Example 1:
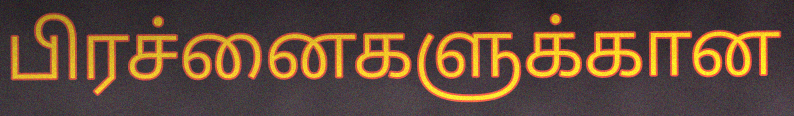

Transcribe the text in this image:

பிரச்னைகளுக்கான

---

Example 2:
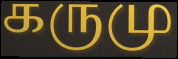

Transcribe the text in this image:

கருமு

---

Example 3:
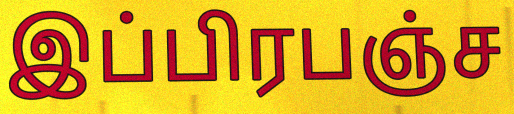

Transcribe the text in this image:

இப்பிரபஞ்ச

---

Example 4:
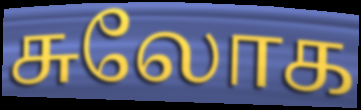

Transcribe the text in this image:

சுலோக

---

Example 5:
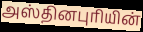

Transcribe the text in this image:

அஸ்தினபுரியின்